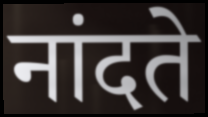
नांदते